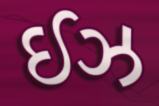
ઈઝ